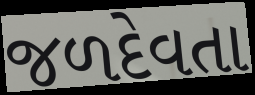
જળદેવતા